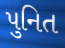
પુનિત